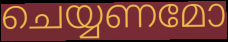
ചെയ്യണമോ